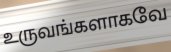
உருவங்களாகவே